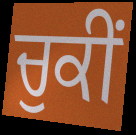
ਚੁਕੀਂ